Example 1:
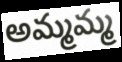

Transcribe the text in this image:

అమ్మమ్మ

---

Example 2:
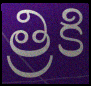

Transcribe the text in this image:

త్రికి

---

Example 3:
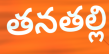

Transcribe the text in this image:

తనతల్లి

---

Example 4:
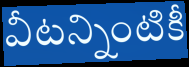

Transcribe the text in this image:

వీటన్నింటికీ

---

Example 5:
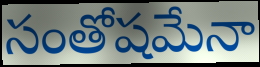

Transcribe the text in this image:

సంతోషమేనా